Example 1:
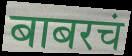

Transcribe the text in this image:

बाबरचं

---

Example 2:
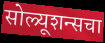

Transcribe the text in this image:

सोल्यूशन्सचा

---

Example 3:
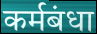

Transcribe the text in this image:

कर्मबंधा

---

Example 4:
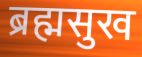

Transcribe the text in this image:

ब्रह्मसुख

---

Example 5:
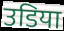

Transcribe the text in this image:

उडिया